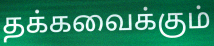
தக்கவைக்கும்